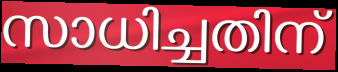
സാധിച്ചതിന്